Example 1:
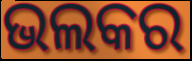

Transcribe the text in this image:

ଭଲକର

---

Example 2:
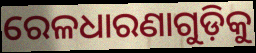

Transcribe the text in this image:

ରେଳଧାରଣାଗୁଡ଼ିକୁ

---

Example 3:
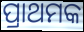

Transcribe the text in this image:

ପ୍ରାଥମକ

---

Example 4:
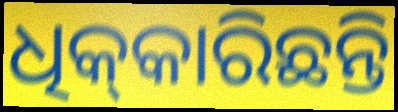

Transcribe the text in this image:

ଧିକ୍‌କାରିଛନ୍ତି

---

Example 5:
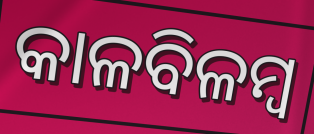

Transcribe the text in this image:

କାଳବିଳମ୍ବ